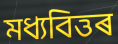
মধ্যবিত্তৰ